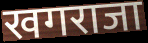
खगराजा